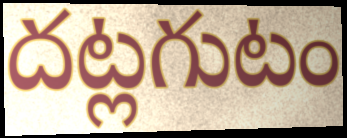
దట్లగుటం